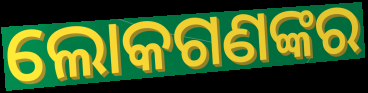
ଲୋକଗଣଙ୍କର